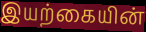
இயற்கையின்